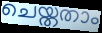
ചെയ്തതാം